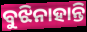
ବୁଝିନାହାନ୍ତି